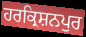
ਹਰਕ੍ਰਿਸ਼ਨਪੁਰ